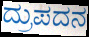
ದ್ರುಪದನ